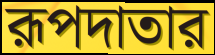
রূপদাতার